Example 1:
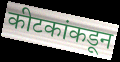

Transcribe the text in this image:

कीटकांकडून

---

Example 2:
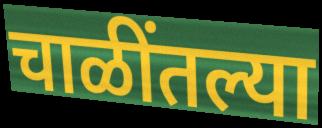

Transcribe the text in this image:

चाळींतल्या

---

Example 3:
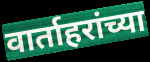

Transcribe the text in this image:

वार्ताहरांच्या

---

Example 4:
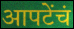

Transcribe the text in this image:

आपटेंचं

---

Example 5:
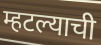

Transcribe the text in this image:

म्हटल्याची